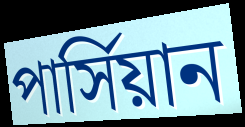
পার্সিয়ান